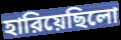
হারিয়েছিলো